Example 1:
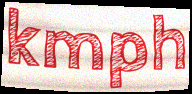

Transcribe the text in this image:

kmph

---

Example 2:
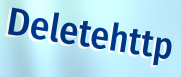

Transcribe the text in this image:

Deletehttp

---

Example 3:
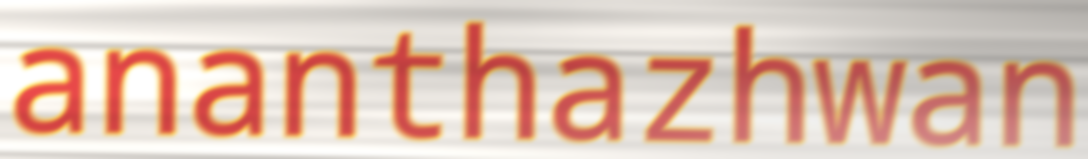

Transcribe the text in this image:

ananthazhwan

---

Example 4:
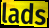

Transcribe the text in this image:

lads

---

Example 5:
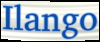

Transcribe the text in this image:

Ilango